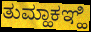
ತುಮ್ಹಾಕಞ್ಹಿ